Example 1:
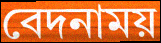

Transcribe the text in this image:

বেদনাময়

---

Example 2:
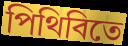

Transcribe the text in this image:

পিথিবিতে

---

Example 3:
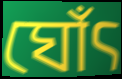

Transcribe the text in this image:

ঘোঁৎ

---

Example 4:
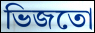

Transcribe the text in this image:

ভিজতো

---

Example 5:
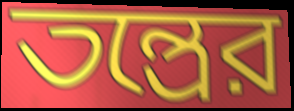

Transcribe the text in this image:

তন্ত্রের